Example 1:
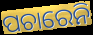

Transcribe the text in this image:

ପଚାରେନି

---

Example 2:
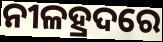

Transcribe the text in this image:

ନୀଳହ୍ରଦରେ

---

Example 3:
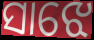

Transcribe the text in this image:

ସାଝେ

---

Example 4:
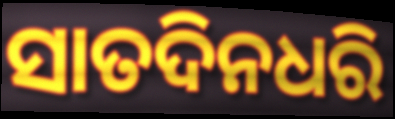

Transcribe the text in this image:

ସାତଦିନଧରି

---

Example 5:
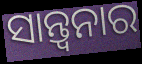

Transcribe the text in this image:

ସାନ୍ତ୍ୱନାର